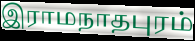
இராமநாதபுரம்